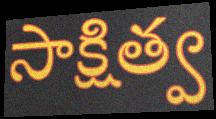
సాక్షిత్వ